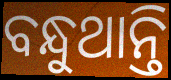
ବନ୍ଧୁଥାନ୍ତି